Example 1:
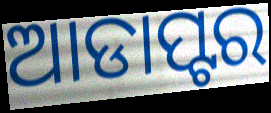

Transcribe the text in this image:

ଆଡାପ୍ଟର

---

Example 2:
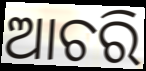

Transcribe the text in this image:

ଆଚରି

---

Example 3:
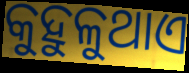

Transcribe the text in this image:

କୁହୁଳୁଥାଏ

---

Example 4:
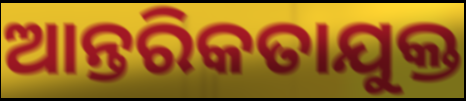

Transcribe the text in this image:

ଆନ୍ତରିକତାଯୁକ୍ତ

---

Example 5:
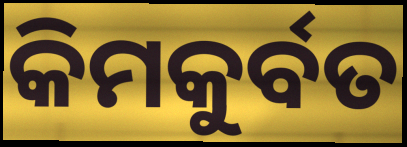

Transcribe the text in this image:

କିମକୁର୍ବତ